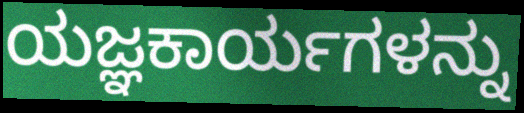
ಯಜ್ಞಕಾರ್ಯಗಳನ್ನು